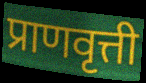
प्राणवृत्ती